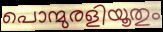
പൊന്മുരളിയൂതും